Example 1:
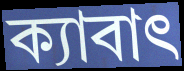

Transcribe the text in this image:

ক্যাবাৎ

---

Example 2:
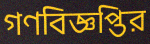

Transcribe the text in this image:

গণবিজ্ঞপ্তির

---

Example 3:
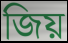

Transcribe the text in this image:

জিয়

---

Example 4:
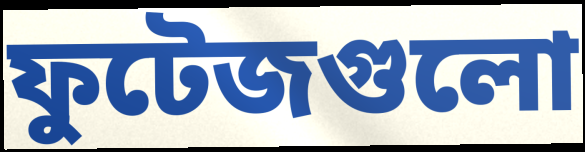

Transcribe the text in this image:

ফুটেজগুলো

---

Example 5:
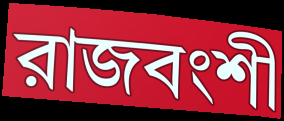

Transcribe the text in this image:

রাজবংশী